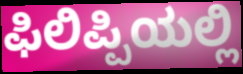
ಫಿಲಿಪ್ಪಿಯಲ್ಲಿ